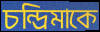
চন্দ্রিমাকে